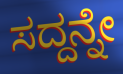
ಸದ್ದನ್ನೇ